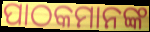
ପାଠକମାନଙ୍କ